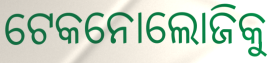
ଟେକନୋଲୋଜିକୁ